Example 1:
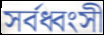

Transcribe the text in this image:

সর্বধ্বংসী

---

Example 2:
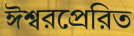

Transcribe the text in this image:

ঈশ্বরপ্রেরিত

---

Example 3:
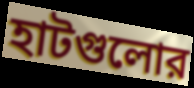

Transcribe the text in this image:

হাটগুলোর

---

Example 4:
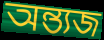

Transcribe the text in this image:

অন্ত্যজ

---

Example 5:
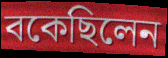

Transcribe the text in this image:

বকেছিলেন